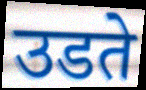
उडते